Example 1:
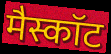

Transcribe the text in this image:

मैस्कॉट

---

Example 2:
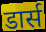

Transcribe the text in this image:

डार्स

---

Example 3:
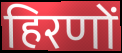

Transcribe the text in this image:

हिरणों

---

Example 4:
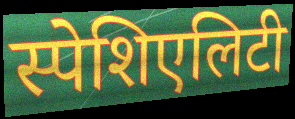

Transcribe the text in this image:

स्पेशिएलिटी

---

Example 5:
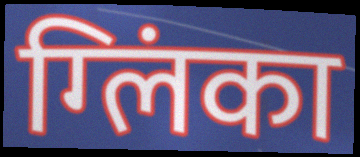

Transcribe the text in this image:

ग्लिंका